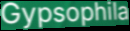
Gypsophila